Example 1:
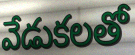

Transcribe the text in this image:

వేడుకలతో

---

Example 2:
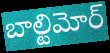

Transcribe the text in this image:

బాల్టిమోర్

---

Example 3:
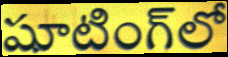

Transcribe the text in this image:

షూటింగ్‌లో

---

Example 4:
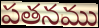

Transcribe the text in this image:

పతనము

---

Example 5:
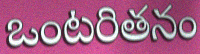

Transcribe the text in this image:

ఒంటరితనం